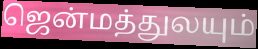
ஜென்மத்துலயும்